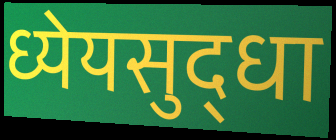
ध्येयसुद्धा